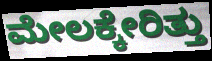
ಮೇಲಕ್ಕೇರಿತ್ತು